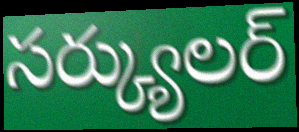
సర్క్యులర్